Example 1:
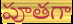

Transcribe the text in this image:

పూతగా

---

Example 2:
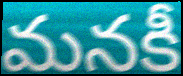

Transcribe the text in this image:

మనకీ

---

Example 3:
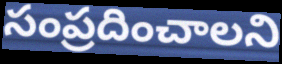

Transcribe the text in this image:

సంప్రదించాలని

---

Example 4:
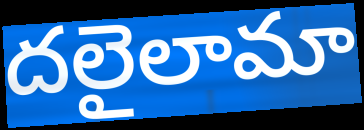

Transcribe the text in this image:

దలైలామా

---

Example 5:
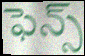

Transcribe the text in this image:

ఫెన్స్